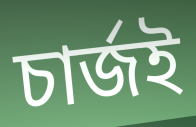
চার্জই